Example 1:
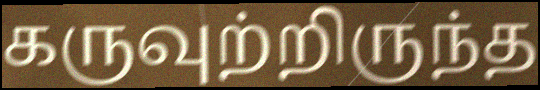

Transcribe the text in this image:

கருவுற்றிருந்த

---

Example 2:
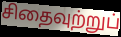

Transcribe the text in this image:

சிதைவுற்றுப்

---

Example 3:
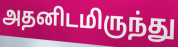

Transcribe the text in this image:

அதனிடமிருந்து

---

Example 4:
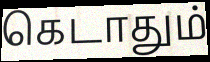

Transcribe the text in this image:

கெடாதும்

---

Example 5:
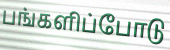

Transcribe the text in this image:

பங்களிப்போடு